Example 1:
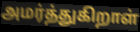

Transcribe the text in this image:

அமர்த்துகிறாள்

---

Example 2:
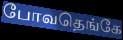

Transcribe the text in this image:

போவதெங்கே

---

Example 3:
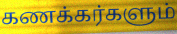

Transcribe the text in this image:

கணக்கர்களும்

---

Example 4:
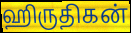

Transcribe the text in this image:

ஹிருதிகன்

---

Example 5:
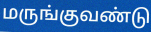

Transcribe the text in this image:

மருங்குவண்டு